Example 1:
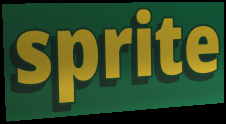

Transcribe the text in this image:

sprite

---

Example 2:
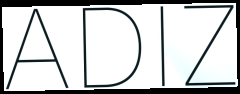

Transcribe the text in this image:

ADIZ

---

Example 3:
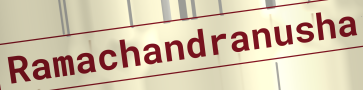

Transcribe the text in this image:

Ramachandranusha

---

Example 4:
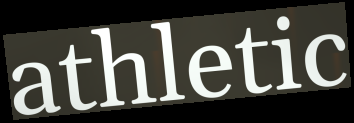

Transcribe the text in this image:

athletic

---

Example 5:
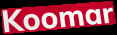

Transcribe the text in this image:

Koomar